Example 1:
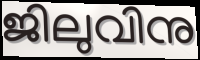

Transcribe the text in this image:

ജിലുവിനു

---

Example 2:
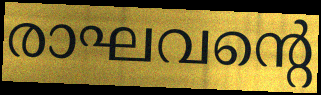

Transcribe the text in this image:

രാഘവന്റെ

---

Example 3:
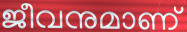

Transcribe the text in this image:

ജീവനുമാണ്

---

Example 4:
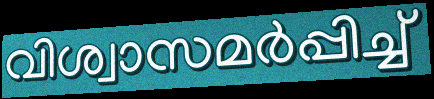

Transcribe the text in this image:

വിശ്വാസമർപ്പിച്ച്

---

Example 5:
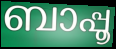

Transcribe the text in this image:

ബാപ്പൂ